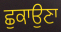
ਛੁਕਾਉਣਾ